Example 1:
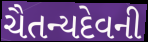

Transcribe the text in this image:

ચૈતન્યદેવની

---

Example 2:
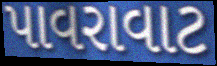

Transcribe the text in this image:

પાવરાવાટ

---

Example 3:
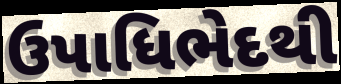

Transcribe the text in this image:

ઉપાધિભેદથી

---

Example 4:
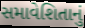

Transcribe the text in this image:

સમાવેશિતાનું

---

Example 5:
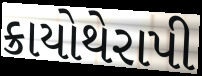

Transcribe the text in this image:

ક્રાયોથેરાપી